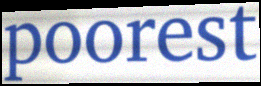
poorest